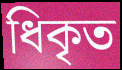
ধিকৃত